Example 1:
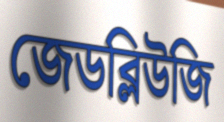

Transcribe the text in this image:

জেডব্লিউজি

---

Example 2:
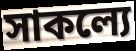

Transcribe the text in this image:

সাকল্যে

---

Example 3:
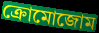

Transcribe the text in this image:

ক্রোমোজোম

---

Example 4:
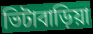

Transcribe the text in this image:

ভিটাবাড়িয়া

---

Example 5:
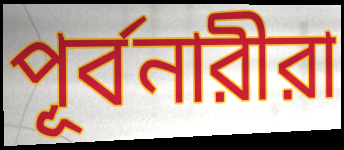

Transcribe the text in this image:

পূর্বনারীরা